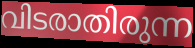
വിടരാതിരുന്ന